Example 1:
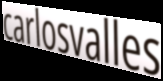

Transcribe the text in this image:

carlosvalles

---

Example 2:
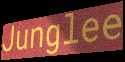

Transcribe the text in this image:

Junglee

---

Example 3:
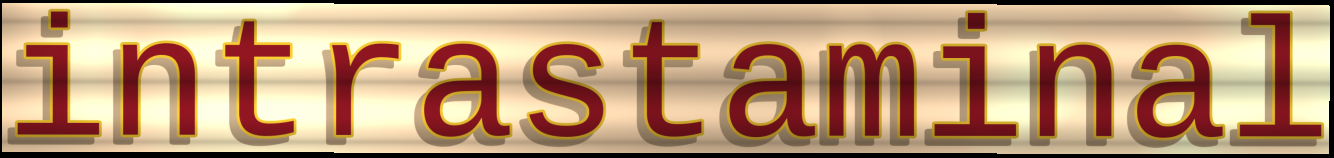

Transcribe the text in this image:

intrastaminal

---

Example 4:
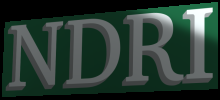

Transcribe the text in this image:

NDRI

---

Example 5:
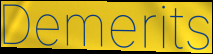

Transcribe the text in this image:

Demerits